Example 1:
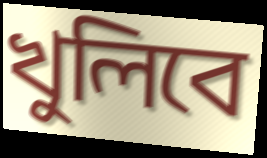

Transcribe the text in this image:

খুলিবে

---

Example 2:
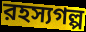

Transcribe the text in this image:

রহস্যগল্প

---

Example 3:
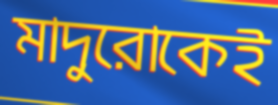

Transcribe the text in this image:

মাদুরোকেই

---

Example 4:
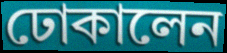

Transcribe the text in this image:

ঢোকালেন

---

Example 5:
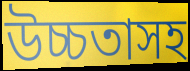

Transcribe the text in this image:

উচ্চতাসহ